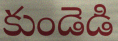
కుండెడి